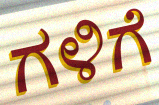
ಗಳಿಗೆ